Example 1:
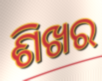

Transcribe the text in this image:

ଶିଖର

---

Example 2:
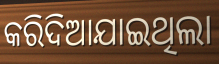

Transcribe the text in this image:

କରିଦିଆଯାଇଥିଲା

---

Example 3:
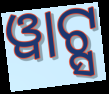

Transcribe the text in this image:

ୱାଟ୍ସ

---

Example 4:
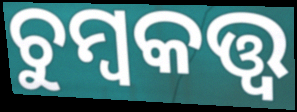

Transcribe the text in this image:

ଚୁମ୍ବକତ୍ତ୍ୱ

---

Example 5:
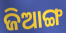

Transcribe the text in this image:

ଜିଆଙ୍ଗ